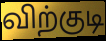
விற்குடி